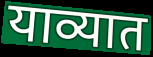
याव्यात